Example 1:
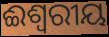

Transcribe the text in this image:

ଈଶ୍ବରୀୟ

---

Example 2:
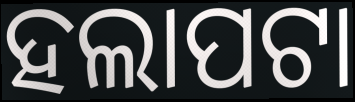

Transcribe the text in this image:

ହଲାପଟା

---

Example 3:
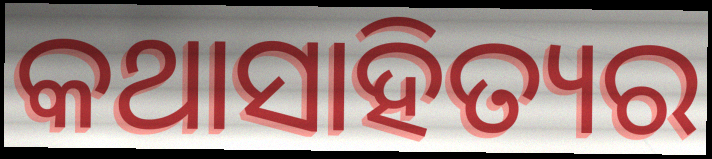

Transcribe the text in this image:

କଥାସାହିତ୍ୟର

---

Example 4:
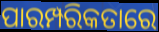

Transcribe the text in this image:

ପାରମ୍ପରିକତାରେ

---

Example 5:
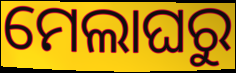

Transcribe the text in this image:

ମେଲାଘରୁ